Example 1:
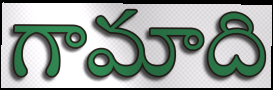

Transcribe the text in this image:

గామాది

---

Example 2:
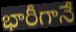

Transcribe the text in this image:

భారీగానే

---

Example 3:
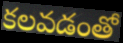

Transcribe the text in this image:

కలవడంతో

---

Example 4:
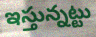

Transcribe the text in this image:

ఇస్తున్నట్టు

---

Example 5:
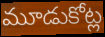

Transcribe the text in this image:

మూడుకోట్ల